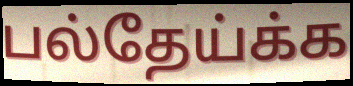
பல்தேய்க்க